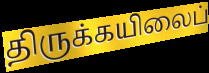
திருக்கயிலைப்